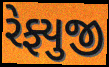
રેફ્યુજી